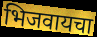
भिजवायचा